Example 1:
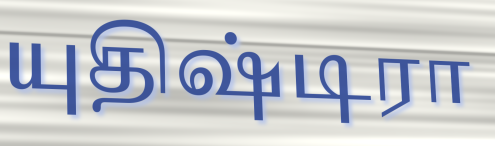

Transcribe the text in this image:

யுதிஷ்டிரா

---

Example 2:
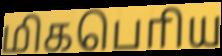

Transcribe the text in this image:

மிகபெரிய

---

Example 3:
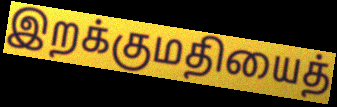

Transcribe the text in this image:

இறக்குமதியைத்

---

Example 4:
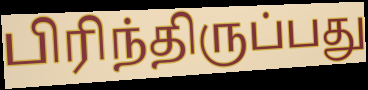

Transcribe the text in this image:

பிரிந்திருப்பது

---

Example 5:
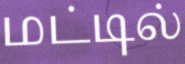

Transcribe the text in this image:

மட்டில்